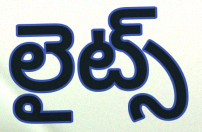
లైట్స్